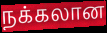
நக்கலான